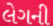
લેગની